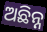
ଅଛିନ୍ନ